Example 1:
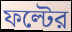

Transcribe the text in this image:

ফল্টের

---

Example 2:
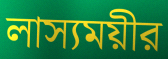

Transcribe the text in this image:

লাস্যময়ীর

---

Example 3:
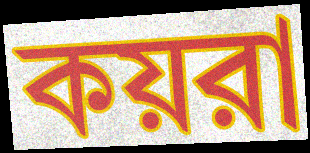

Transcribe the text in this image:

কয়রা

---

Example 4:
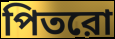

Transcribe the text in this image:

পিতরো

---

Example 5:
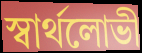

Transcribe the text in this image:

স্বার্থলোভী